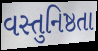
વસ્તુનિષ્ઠતા